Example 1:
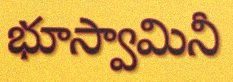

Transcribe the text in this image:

భూస్వామినీ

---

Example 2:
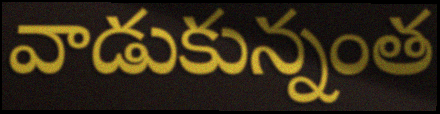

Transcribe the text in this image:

వాడుకున్నంత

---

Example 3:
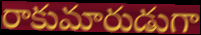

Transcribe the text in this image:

రాకుమారుడుగా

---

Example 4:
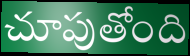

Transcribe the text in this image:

చూపుతోంది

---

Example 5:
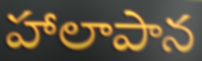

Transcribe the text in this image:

హాలాపాన